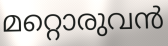
മറ്റൊരുവൻ